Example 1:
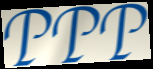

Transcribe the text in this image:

PPP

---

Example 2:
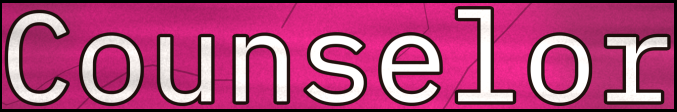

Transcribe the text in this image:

Counselor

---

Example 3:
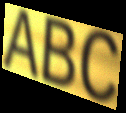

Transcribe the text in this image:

ABC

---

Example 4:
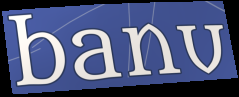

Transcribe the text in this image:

banu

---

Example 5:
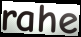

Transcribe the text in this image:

rahe